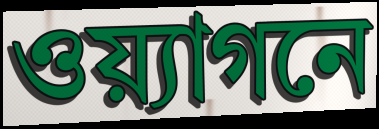
ওয়্যাগনে